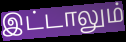
இட்டாலும்